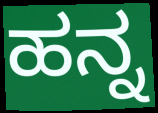
ಹನ್ನ